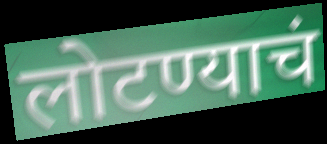
लोटण्याचं